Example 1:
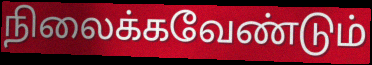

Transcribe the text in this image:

நிலைக்கவேண்டும்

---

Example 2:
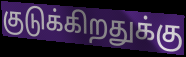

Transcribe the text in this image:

குடுக்கிறதுக்கு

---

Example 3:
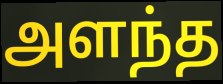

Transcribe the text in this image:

அளந்த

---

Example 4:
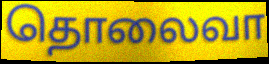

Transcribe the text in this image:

தொலைவா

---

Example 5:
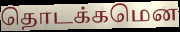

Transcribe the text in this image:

தொடக்கமென